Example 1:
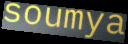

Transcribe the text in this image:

soumya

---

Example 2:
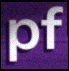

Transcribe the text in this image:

pf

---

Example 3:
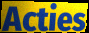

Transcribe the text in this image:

Acties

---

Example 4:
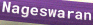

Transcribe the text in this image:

Nageswaran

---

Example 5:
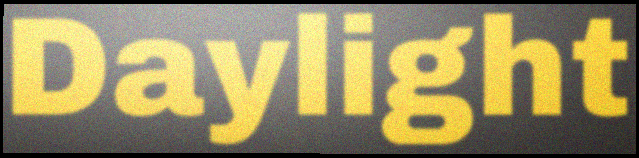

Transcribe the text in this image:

Daylight